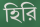
হিরি